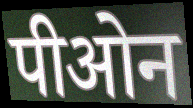
पीओन